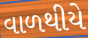
વાળથીયે